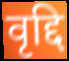
वृद्दि